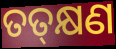
ତତ୍‌କ୍ଷଣ